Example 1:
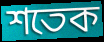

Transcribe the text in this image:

শতেক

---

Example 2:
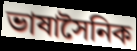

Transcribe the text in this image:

ভাষাসৈনিক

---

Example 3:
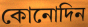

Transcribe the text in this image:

কোনোদিন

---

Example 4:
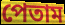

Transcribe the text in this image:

পেতাম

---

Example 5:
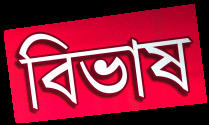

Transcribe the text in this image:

বিভাষ